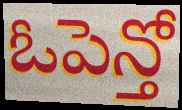
ఓపెన్తో